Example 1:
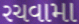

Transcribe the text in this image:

રચવામા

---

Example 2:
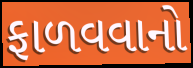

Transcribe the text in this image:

ફાળવવાનો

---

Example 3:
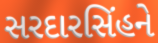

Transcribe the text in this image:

સરદારસિંહને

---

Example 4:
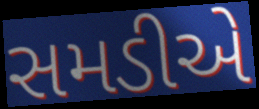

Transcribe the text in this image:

સમડીએ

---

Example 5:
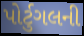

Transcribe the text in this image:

પોર્ટુગલની